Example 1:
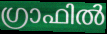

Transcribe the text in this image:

ഗ്രാഫിൽ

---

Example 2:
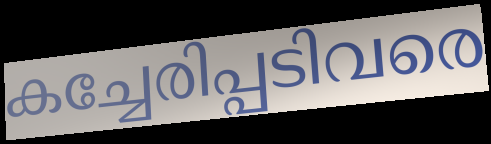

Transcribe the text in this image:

കച്ചേരിപ്പടിവരെ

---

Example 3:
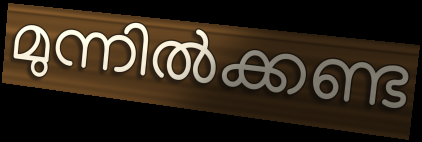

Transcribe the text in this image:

മുന്നിൽക്കണ്ട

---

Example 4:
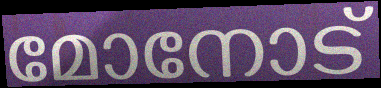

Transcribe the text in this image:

മോനോട്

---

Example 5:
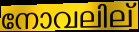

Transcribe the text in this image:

നോവലില്